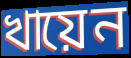
খায়েন